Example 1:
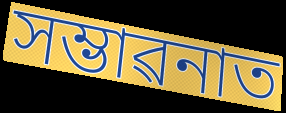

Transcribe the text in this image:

সম্ভাৱনাত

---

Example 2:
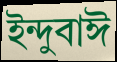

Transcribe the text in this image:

ইন্দুবাঈ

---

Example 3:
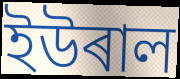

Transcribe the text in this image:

ইউৰাল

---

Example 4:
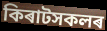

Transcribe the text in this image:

কিৰাটসকলৰ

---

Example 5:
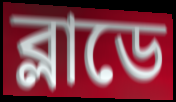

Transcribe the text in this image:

ব্লাডে